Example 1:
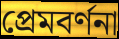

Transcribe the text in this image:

প্রেমবর্ণনা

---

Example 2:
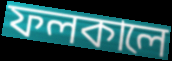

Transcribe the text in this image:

ফলকালে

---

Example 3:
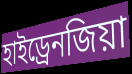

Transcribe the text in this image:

হাইড্রেনজিয়া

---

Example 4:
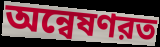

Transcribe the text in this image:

অন্বেষণরত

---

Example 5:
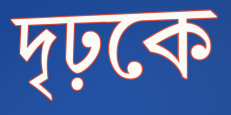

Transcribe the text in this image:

দৃঢ়কে